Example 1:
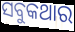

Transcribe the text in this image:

ସବୁକଥାର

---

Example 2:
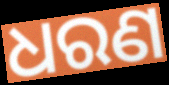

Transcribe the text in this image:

ଧରଣ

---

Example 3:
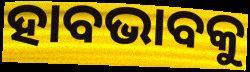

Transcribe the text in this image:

ହାବଭାବକୁ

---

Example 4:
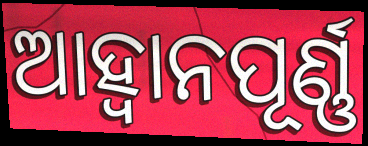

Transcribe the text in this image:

ଆହ୍ବାନପୂର୍ଣ୍ଣ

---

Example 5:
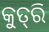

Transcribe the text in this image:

କୁତ୍‌ରି